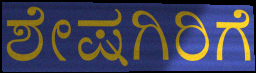
ಶೇಷಗಿರಿಗೆ